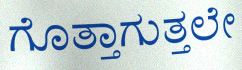
ಗೊತ್ತಾಗುತ್ತಲೇ